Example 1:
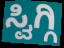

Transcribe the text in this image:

ಸ್ವಿಗ್ಗಿ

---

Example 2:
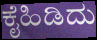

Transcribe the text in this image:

ಕೈಹಿಡಿದು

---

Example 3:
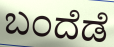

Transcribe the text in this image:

ಬಂದೆಡೆ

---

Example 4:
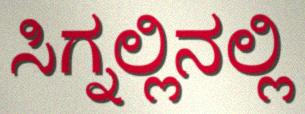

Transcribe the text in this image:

ಸಿಗ್ನಲ್ಲಿನಲ್ಲಿ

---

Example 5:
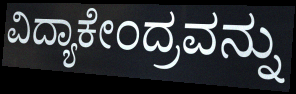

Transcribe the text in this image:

ವಿದ್ಯಾಕೇಂದ್ರವನ್ನು